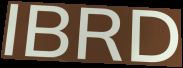
IBRD